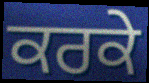
ਕਰਕੇ